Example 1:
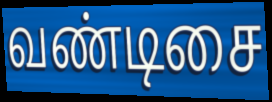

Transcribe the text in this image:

வண்டிசை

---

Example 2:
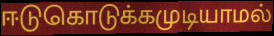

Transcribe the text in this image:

ஈடுகொடுக்கமுடியாமல்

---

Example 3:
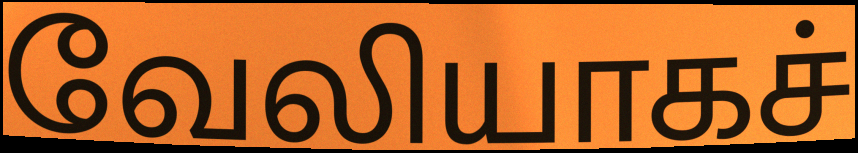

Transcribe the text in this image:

வேலியாகச்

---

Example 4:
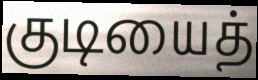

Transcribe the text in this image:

குடியைத்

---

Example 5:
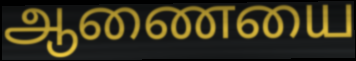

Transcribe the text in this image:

ஆணையை